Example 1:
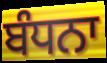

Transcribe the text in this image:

ਬੰਧਨਾ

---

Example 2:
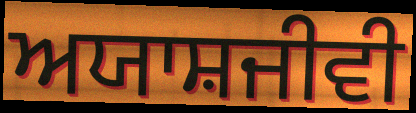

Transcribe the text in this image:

ਅਯਾਸ਼ਜੀਵੀ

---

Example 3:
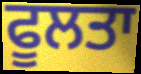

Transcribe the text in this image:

ਫੂਲਤਾ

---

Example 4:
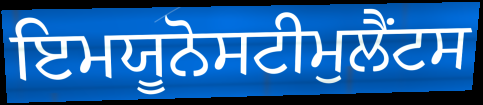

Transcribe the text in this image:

ਇਮਯੂਨੋਸਟੀਮੁਲੈਂਟਸ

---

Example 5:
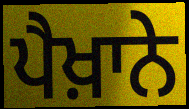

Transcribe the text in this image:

ਪੈਖ਼ਾਨੇ